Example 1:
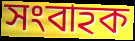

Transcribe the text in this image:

সংবাহক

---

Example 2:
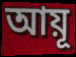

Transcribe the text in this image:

আয়ূ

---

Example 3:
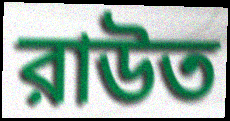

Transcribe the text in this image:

রাউত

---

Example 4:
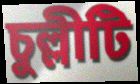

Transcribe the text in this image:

চুল্লীটি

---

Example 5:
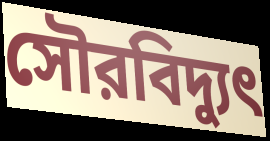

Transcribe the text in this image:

সৌরবিদ্যুৎ